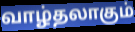
வாழ்தலாகும்